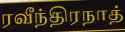
ரவீந்திரநாத்